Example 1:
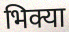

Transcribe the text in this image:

भिक्या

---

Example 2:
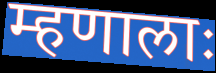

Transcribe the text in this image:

म्हणालाः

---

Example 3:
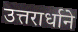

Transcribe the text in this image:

उत्तरार्धाने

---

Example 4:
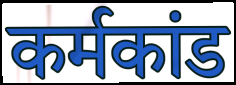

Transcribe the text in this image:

कर्मकांड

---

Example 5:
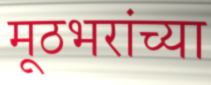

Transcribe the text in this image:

मूठभरांच्या